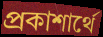
প্রকাশার্থে